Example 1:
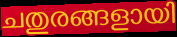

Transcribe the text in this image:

ചതുരങ്ങളായി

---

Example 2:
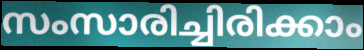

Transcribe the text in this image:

സംസാരിച്ചിരിക്കാം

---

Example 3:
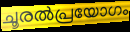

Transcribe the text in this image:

ചൂരൽപ്രയോഗം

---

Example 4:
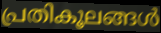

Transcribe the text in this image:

പ്രതികൂലങ്ങൾ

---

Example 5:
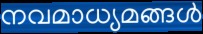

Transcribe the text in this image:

നവമാധ്യമങ്ങൾ